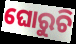
ଘୋରୁଚି